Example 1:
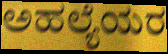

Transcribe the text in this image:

ಅಹಲ್ಯೆಯರ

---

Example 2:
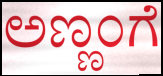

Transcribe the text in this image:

ಅಣ್ಣಂಗೆ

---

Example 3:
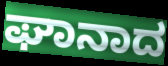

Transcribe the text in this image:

ಘಾನಾದ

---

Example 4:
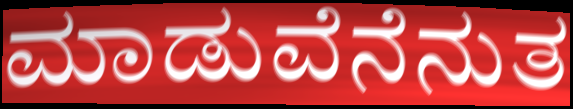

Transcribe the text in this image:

ಮಾಡುವೆನೆನುತ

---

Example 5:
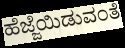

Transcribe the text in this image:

ಹೆಜ್ಜೆಯಿಡುವಂತೆ